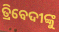
ତ୍ରିବେଦୀଙ୍କୁ